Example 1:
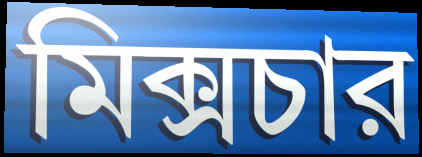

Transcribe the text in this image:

মিক্সচার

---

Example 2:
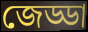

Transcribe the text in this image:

জেড্ডা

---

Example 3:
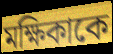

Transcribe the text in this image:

মক্ষিকাকে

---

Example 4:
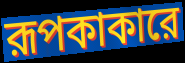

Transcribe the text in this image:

রূপকাকারে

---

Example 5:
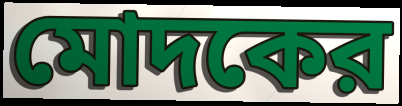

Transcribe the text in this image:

মোদকের